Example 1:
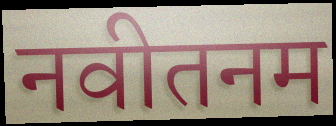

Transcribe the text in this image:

नवीतनम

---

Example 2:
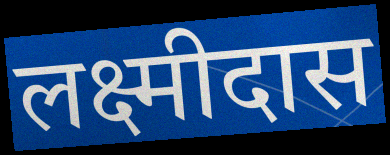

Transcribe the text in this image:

लक्ष्मीदास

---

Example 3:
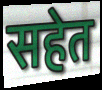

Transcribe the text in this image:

सहेत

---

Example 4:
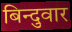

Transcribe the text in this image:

बिन्‍दुवार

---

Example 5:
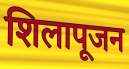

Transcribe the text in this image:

शिलापूजन